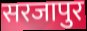
सरजापुर